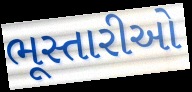
ભૂસ્તારીઓ